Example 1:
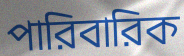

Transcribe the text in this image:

পারিবারিক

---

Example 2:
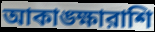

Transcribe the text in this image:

আকাঙ্ক্ষারাশি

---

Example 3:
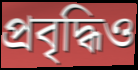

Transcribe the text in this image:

প্রবৃদ্ধিও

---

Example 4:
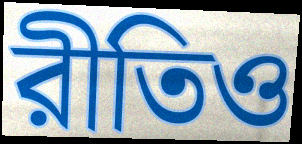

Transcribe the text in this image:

রীতিও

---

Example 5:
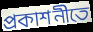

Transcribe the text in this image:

প্রকাশনীতে